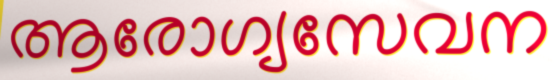
ആരോഗ്യസേവന